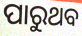
ପାରୁଥବ